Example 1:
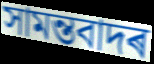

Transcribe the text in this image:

সামন্তবাদৰ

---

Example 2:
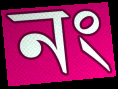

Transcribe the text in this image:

নং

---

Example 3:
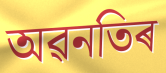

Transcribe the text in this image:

অৱনতিৰ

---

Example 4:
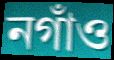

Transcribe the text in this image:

নগাঁও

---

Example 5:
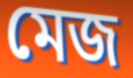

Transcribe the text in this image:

মেজ